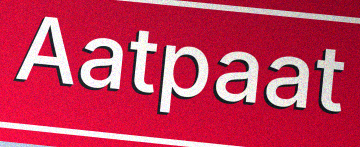
Aatpaat